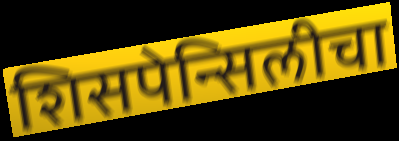
शिसपेन्सिलीचा